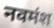
नवमंश